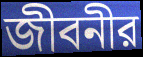
জীবনীর